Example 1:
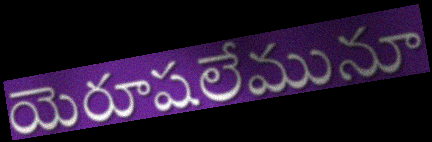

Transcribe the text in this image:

యెరూషలేమునూ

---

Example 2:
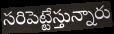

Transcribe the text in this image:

సరిపెట్టేస్తున్నారు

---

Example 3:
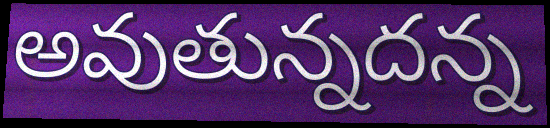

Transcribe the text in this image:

అవుతున్నదన్న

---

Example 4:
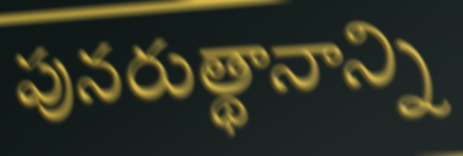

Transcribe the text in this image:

పునరుత్థానాన్ని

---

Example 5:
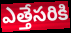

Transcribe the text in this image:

ఎత్తేసరికి